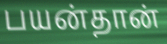
பயன்தான்